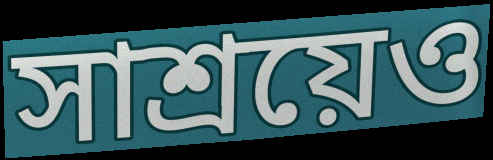
সাশ্রয়েও